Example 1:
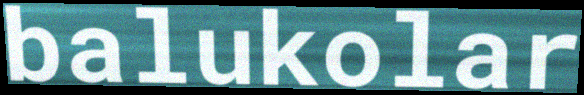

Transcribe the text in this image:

balukolar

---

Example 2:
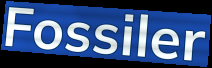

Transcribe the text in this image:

Fossiler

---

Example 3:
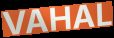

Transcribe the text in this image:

VAHAL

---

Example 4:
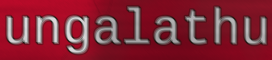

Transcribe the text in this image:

ungalathu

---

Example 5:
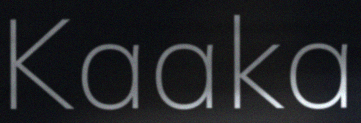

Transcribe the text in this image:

Kaaka